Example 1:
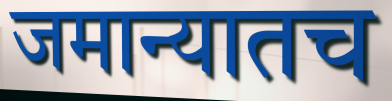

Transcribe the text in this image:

जमान्यातच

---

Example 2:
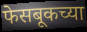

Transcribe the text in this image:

फेसबूकच्या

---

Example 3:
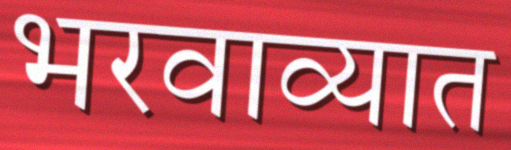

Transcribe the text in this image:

भरवाव्यात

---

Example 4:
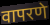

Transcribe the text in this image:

वापरणे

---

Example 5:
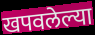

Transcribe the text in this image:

खपवलेल्या